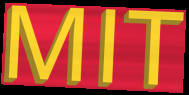
MIT